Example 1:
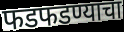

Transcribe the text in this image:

फडफडण्याचा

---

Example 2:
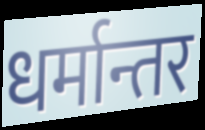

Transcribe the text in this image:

धर्मान्तर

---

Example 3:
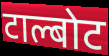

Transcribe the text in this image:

टाल्बोट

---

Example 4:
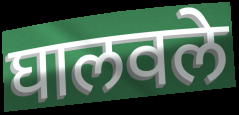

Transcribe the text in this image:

घालवले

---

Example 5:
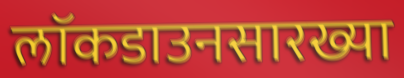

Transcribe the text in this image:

लॉकडाउनसारख्या